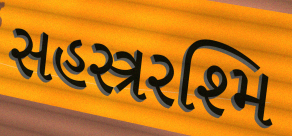
સહસ્ત્રરશ્મિ